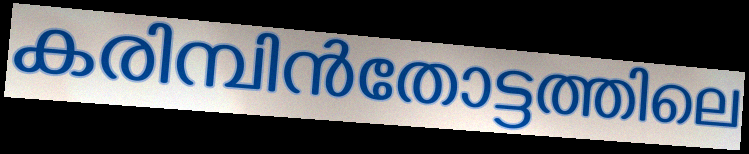
കരിമ്പിൻതോട്ടത്തിലെ